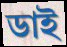
ডাই